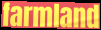
farmland